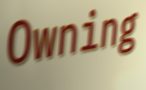
Owning